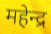
महेन्द्र